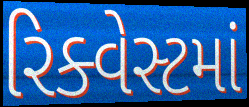
રિક્વેસ્ટમાં